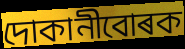
দোকানীবোৰক